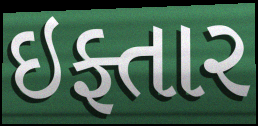
ઇફ્તાર